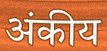
अंकीय